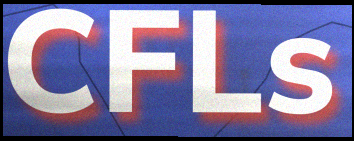
CFLs